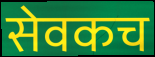
सेवकच